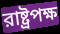
রাষ্ট্রপক্ষ